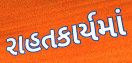
રાહતકાર્યમાં